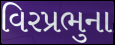
વિરપ્રભુના